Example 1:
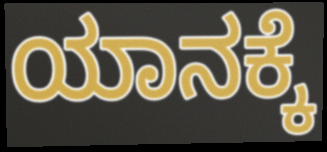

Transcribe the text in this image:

ಯಾನಕ್ಕೆ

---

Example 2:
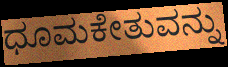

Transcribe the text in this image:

ಧೂಮಕೇತುವನ್ನು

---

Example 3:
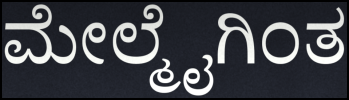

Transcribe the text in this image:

ಮೇಲ್ಮೈಗಿಂತ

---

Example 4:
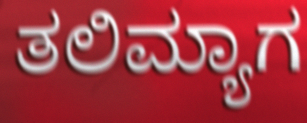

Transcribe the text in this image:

ತಲಿಮ್ಯಾಗ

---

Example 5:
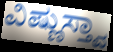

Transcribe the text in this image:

ವಿಷ್ಣುಸ್ತ್ವಾ